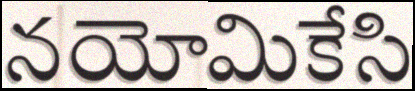
నయోమికేసి